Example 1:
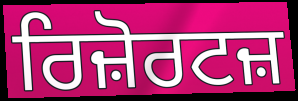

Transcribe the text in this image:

ਰਿਜ਼ੋਰਟਜ਼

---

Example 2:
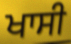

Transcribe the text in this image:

ਖਾਸੀ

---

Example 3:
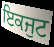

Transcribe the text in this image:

ਇਕਜੁਟ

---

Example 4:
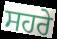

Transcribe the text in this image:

ਸਹਰੇ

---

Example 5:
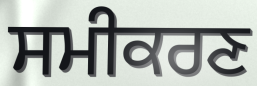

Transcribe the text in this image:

ਸਮੀਕਰਣ